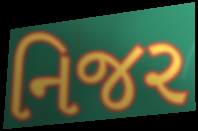
નિજર